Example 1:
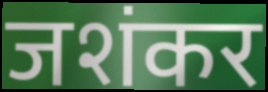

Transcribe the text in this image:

जशंकर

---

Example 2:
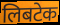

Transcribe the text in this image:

लिबटेक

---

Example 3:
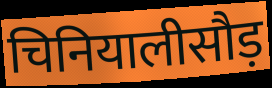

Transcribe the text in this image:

चिनियालीसौड़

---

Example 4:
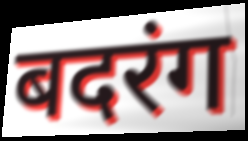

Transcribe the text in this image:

बदरंग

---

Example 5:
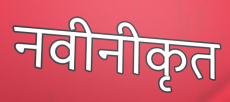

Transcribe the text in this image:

नवीनीकृत